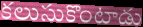
కలుసుకొంటాడు